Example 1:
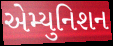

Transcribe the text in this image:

એમ્યુનિશન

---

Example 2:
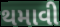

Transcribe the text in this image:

થમાવી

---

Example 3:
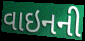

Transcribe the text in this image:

વાઇનની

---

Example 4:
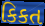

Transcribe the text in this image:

કિકત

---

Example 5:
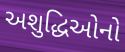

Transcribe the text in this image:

અશુદ્ધિઓનો